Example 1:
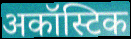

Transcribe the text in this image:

अकॉस्टिक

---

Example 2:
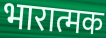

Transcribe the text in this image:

भारात्मक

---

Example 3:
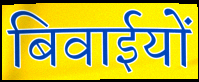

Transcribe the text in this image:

बिवाईयों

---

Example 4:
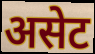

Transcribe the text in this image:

असेट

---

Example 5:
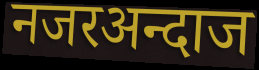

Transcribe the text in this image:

नजरअन्दाज